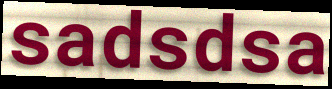
sadsdsa